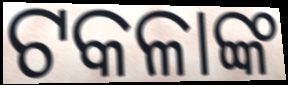
ଟକଳାଙ୍କ